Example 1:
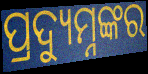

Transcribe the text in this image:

ପ୍ରଦ୍ୟୁମ୍ନଙ୍କର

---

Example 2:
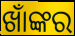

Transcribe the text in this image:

ଖାଁଙ୍କର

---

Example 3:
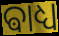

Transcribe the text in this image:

ଵାଧ୍ୟ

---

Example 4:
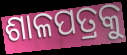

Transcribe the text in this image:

ଶାଳପତ୍ରକୁ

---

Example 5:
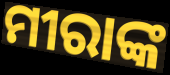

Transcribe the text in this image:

ମୀରାଙ୍କ